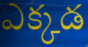
ఎక్కడ